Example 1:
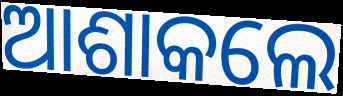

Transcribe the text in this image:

ଆଶାକଲେ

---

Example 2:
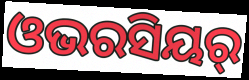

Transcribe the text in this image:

ଓଭରସିୟର୍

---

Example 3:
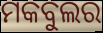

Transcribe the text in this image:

ମକବୁଲର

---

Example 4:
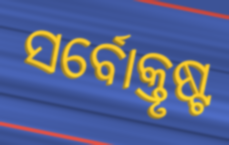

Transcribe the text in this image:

ସର୍ବୋକ୍ତୃଷ୍ଟ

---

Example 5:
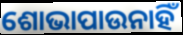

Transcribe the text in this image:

ଶୋଭାପାଉନାହିଁ